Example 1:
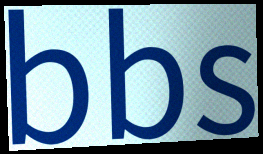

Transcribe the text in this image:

bbs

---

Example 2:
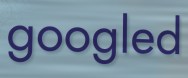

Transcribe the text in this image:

googled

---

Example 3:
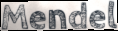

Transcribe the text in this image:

Mendel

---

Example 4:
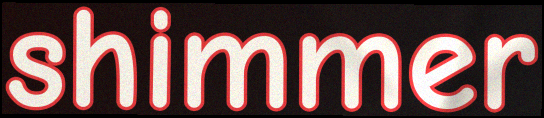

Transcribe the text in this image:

shimmer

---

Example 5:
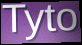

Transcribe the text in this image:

Tyto